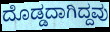
ದೊಡ್ಡದಾಗಿದ್ದವು